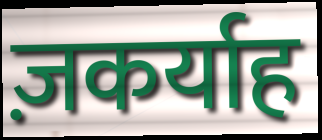
ज़कर्याह